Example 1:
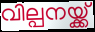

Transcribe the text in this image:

വില്പനയ്ക്ക്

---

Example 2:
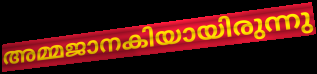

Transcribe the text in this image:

അമ്മജാനകിയായിരുന്നു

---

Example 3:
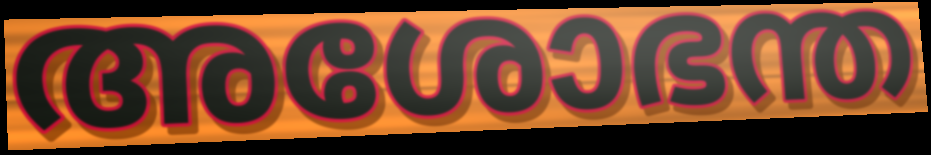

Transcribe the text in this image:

അശോഭന്ത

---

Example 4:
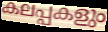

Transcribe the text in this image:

കലപ്പകളും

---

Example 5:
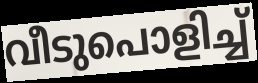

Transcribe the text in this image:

വീടുപൊളിച്ച്